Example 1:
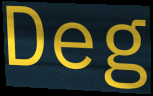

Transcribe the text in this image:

Deg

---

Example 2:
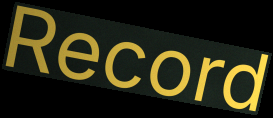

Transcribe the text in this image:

Record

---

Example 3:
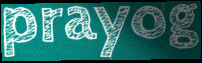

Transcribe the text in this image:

prayog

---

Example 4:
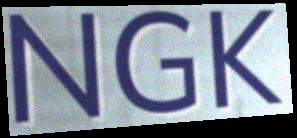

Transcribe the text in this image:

NGK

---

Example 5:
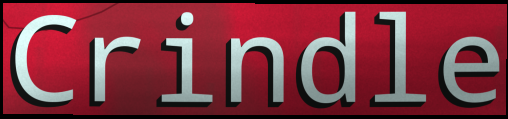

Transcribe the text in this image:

Crindle